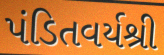
પંડિતવર્યશ્રી